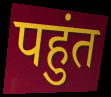
पहुंत